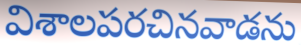
విశాలపరచినవాడను